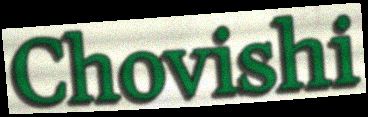
Chovishi